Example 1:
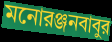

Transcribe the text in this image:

মনোরঞ্জনবাবুর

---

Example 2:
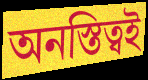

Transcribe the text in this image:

অনস্তিত্বই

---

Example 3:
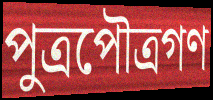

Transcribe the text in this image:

পুত্রপৌত্রগণ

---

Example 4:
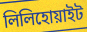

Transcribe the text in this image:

লিলিহোয়াইট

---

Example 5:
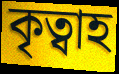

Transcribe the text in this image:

কৃত্বাহ